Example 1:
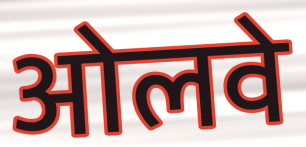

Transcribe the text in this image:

ओलवे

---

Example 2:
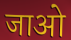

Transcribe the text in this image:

जाओ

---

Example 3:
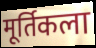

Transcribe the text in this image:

मूर्तिकला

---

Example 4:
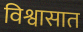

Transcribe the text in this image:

विश्वासात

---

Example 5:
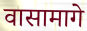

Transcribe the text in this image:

वासामागे